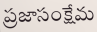
ప్రజాసంక్షేమ